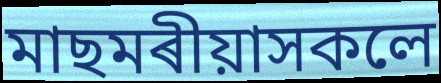
মাছমৰীয়াসকলে